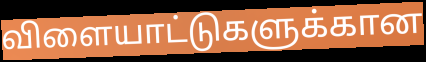
விளையாட்டுகளுக்கான